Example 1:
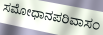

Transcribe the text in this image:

ಸಮೋಧಾನಪರಿವಾಸಂ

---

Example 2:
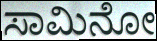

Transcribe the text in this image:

ಸಾಮಿನೋ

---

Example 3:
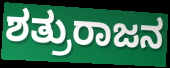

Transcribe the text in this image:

ಶತ್ರುರಾಜನ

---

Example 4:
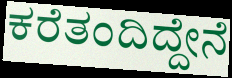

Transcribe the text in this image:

ಕರೆತಂದಿದ್ದೇನೆ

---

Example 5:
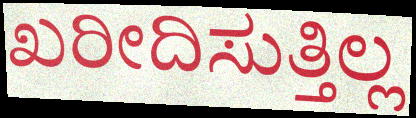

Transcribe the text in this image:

ಖರೀದಿಸುತ್ತಿಲ್ಲ